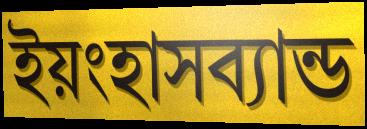
ইয়ংহাসব্যান্ড